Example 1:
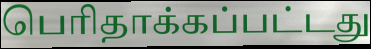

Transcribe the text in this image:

பெரிதாக்கப்பட்டது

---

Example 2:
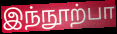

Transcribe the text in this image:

இந்நூற்பா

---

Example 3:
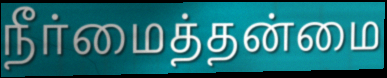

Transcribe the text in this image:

நீர்மைத்தன்மை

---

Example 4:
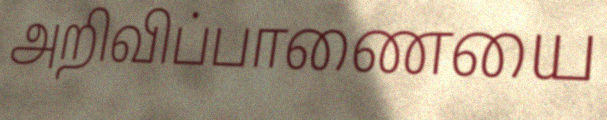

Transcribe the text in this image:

அறிவிப்பாணையை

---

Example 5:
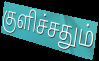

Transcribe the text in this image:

குளிச்சதும்